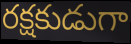
రక్షకుడుగా